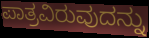
ಪಾತ್ರವಿರುವುದನ್ನು